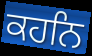
ਕਹਨਿ